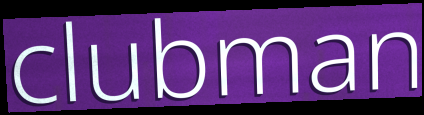
clubman